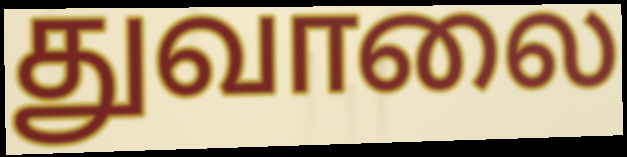
துவாலை